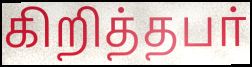
கிறித்தபர்